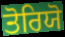
ਤੋਰਿਯੋ